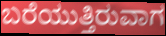
ಬರೆಯುತ್ತಿರುವಾಗ